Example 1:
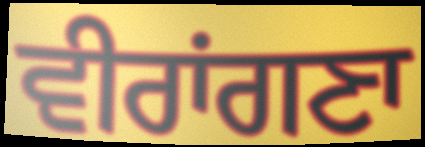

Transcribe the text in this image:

ਵੀਰਾਂਗਣਾ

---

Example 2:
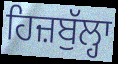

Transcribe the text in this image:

ਹਿਜ਼ਬੁੱਲ੍ਹਾ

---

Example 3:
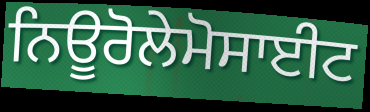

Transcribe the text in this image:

ਨਿਊਰੋਲੇਮੋਸਾਈਟ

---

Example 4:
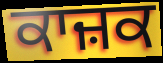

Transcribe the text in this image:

ਕਾਜ਼ਕ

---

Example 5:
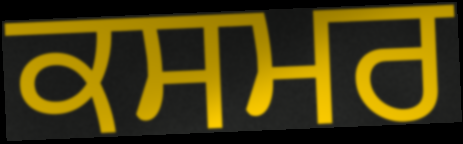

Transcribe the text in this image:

ਕਸਮਰ